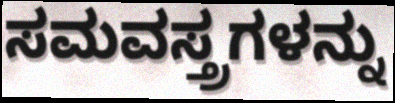
ಸಮವಸ್ತ್ರಗಳನ್ನು